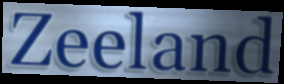
Zeeland